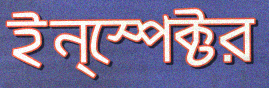
ইন্‌স্পেক্টর